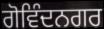
ਗੋਵਿੰਦਨਗਰ